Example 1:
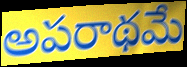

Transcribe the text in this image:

అపరాథమే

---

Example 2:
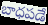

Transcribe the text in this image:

బాధపడే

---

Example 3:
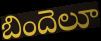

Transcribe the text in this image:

బిందెలూ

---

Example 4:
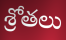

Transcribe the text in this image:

శ్రోతలు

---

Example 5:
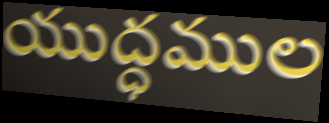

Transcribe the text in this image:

యుద్ధముల